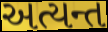
અત્યન્ત